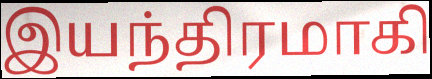
இயந்திரமாகி